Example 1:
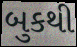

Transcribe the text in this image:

બુકથી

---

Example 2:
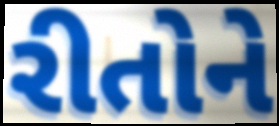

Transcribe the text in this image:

રીતોને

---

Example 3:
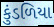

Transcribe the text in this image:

કુંડળિયા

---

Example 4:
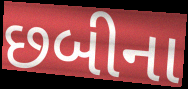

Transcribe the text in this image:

છબીના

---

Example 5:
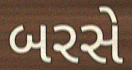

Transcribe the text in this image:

બરસે